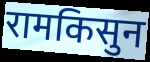
रामकिसुन